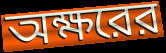
অক্ষরের